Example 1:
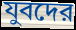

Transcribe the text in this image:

যুবদের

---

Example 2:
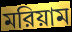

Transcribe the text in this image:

মরিয়াম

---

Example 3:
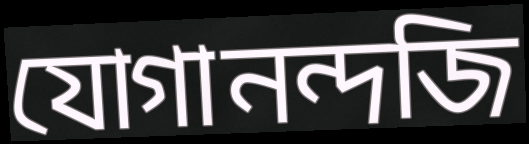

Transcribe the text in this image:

যোগানন্দজি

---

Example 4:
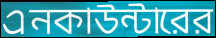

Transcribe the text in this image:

এনকাউন্টারের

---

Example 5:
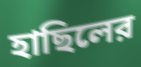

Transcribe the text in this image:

হাছিলের